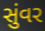
સુંવર